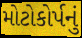
મોટોકોર્પનું